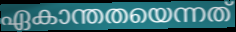
ഏകാന്തതയെന്നത്